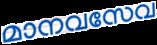
മാനവസേവ